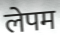
लेपम